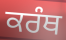
ਕਰੰਥ